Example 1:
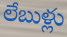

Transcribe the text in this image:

లేబుళ్లు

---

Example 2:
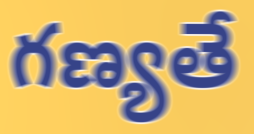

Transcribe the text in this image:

గణ్యతే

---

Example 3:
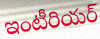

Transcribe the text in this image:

ఇంటీరియర్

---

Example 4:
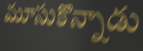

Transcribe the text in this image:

మూసుకొన్నాడు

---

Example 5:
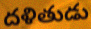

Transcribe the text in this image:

దళితుడు